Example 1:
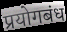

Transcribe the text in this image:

प्रयोगबंध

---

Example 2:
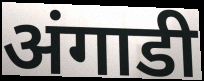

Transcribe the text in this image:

अंगाडी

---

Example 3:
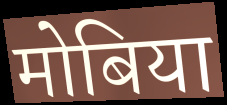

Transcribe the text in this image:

मोबिया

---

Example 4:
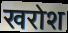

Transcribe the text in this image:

खरोश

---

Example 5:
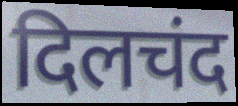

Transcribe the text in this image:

दिलचंद